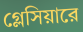
গ্লেসিয়ারে